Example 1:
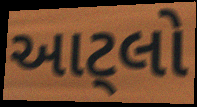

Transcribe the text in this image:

આટ્લો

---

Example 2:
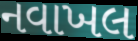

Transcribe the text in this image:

નવાખલ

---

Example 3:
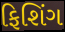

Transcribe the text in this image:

ફિશિંગ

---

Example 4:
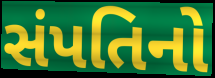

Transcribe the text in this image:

સંપતિનો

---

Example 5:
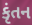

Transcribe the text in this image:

કૃંતન